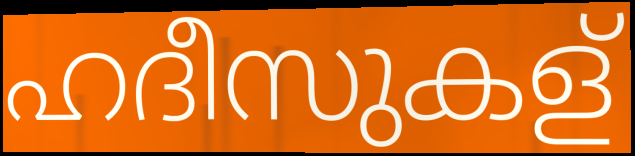
ഹദീസുകള്